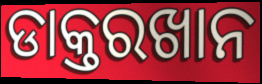
ଡାକ୍ତରଖାନ